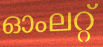
ഓംലറ്റ്